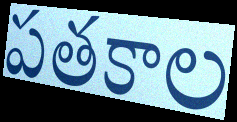
పతకాల